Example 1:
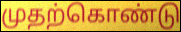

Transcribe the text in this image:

முதற்கொண்டு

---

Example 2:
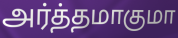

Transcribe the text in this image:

அர்த்தமாகுமா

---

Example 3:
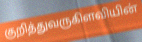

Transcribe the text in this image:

குறித்துவருகிளவியின்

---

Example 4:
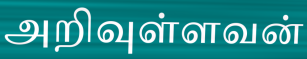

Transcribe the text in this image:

அறிவுள்ளவன்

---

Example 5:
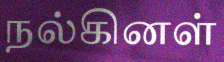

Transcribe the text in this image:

நல்கினள்